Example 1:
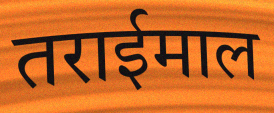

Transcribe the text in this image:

तराईमाल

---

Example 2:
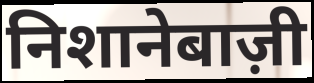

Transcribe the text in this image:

निशानेबाज़ी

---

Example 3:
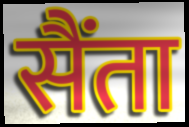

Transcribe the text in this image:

सैंता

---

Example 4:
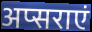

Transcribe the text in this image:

अप्सराएं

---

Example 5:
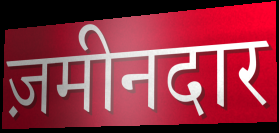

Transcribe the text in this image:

ज़मीनदार